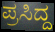
ಪ್ರಸಿದ್ದ